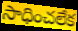
సాధించలేక